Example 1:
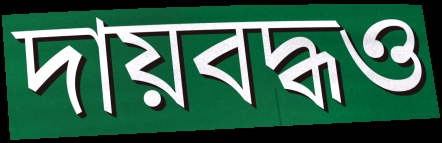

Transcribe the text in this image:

দায়বদ্ধও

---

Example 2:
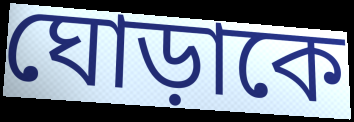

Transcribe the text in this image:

ঘোড়াকে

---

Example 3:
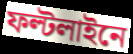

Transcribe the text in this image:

ফল্টলাইনে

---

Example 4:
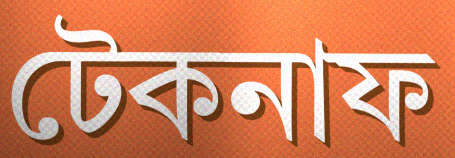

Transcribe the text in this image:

টেকনাফ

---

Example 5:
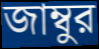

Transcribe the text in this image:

জাম্বুর